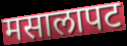
मसालापट